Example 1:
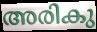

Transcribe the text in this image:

അരികു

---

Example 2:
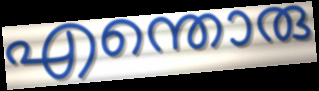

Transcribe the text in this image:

എന്തൊരു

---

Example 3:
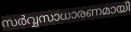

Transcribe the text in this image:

സർവ്വസാധാരണമായി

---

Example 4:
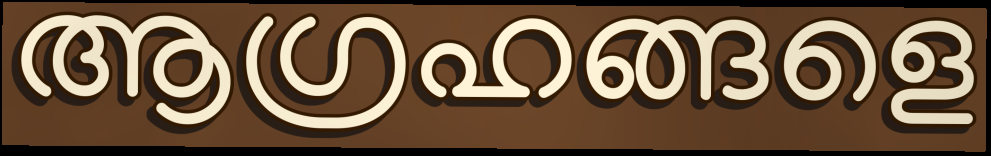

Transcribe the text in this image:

ആഗ്രഹങ്ങളെ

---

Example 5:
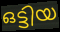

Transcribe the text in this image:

ഒട്ടിയ